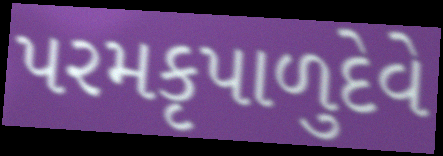
પરમકૃપાળુદેવે